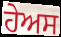
ਹੇਅਸ